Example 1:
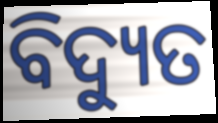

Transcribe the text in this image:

ବିଦ୍ଯୁତ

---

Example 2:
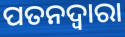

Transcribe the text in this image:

ପତନଦ୍ୱାରା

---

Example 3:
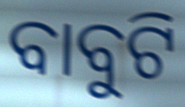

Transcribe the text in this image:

ବାବୁଟି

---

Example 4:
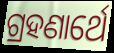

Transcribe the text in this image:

ଗ୍ରହଣାର୍ଥେ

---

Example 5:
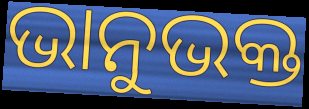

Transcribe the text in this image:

ଭାନୁଭକ୍ତ